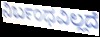
ನಿರ್ಬಂಧವಿಲ್ಲದೆ